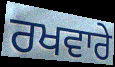
ਰਖਵਾਰੇ